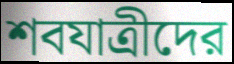
শবযাত্রীদের